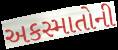
અકસ્માતોની